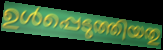
ഉൾപ്പെടുത്തിയതു